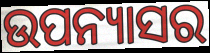
ଉପନ୍ୟାସର